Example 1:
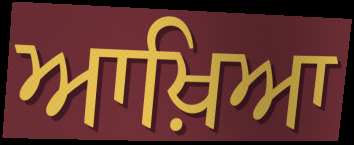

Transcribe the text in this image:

ਆਖ਼ਿਆ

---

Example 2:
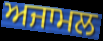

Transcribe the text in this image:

ਅਜਾਮਲ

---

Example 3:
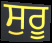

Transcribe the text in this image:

ਸੁਰੂ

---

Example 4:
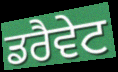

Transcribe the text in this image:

ਡਰੈਵੇਟ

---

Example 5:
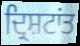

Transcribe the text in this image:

ਦ੍ਰਿਸ਼ਟਾਂਤ